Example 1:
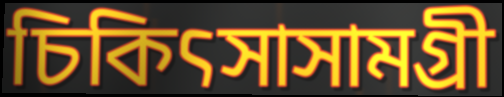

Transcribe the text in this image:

চিকিৎসাসামগ্রী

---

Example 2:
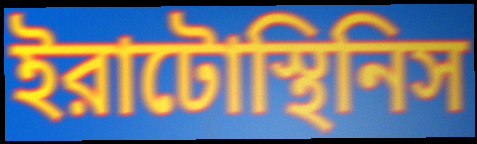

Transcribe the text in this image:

ইরাটোস্থিনিস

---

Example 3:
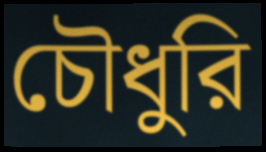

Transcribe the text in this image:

চৌধুরি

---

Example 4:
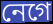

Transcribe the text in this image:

নেগে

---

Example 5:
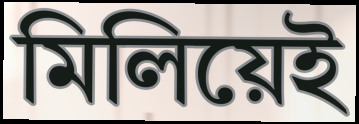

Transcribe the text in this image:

মিলিয়েই